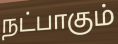
நட்பாகும்